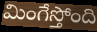
మింగేస్తోంది